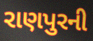
રાણપુરની